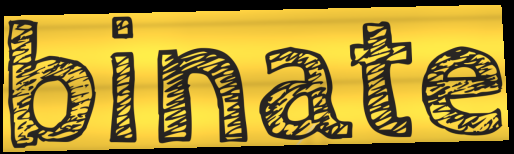
binate